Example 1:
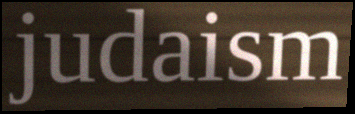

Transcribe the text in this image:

judaism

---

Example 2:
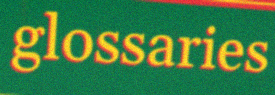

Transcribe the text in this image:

glossaries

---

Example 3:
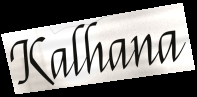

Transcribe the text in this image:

Kalhana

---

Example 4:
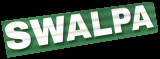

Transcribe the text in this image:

SWALPA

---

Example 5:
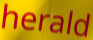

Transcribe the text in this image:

herald